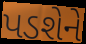
પડશેને